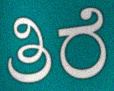
ತಿರೆ